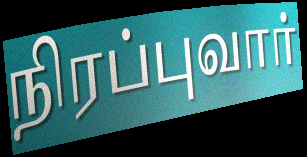
நிரப்புவார்